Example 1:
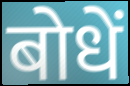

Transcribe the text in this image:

बोधें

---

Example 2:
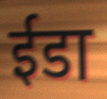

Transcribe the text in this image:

ईडा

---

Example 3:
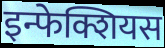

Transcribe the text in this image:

इन्फेक्शियस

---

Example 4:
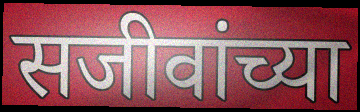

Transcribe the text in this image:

सजीवांच्या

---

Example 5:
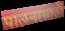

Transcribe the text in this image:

पालनासाठी